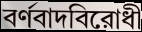
বর্ণবাদবিরোধী